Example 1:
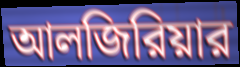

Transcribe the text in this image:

আলজিরিয়ার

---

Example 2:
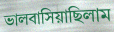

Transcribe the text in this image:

ভালবাসিয়াছিলাম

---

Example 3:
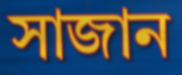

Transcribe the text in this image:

সাজান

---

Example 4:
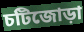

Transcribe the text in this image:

চটিজোড়া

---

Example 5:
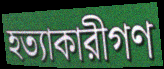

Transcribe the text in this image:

হত্যাকারীগণ